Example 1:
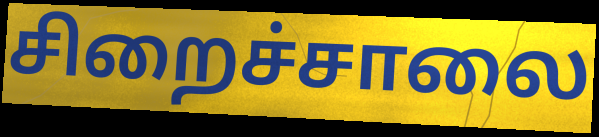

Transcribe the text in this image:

சிறைச்சாலை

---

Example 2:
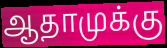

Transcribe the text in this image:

ஆதாமுக்கு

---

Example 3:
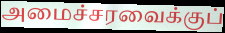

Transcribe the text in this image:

அமைச்சரவைக்குப்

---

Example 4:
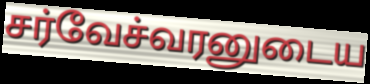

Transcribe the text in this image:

சர்வேச்வரனுடைய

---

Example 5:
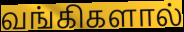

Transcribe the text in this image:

வங்கிகளால்